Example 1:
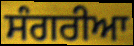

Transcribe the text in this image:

ਸੰਗਰੀਆ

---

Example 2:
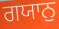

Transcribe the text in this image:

ਗਯਾਨੁ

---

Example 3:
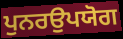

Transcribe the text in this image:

ਪੁਨਰਉਪਯੋਗ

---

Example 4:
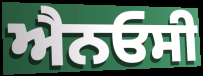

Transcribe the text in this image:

ਐਨਓਸੀ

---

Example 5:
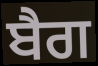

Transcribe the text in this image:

ਬੈਗ